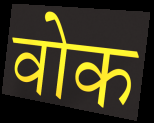
वोक